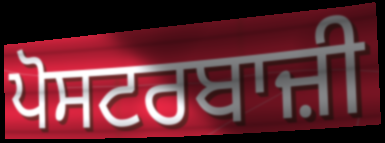
ਪੋਸਟਰਬਾਜ਼ੀ